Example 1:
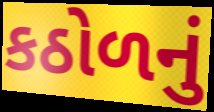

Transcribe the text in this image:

કઠોળનું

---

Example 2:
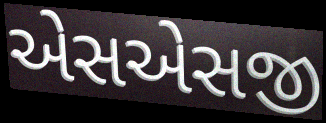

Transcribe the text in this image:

એસએસજી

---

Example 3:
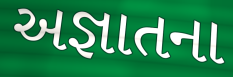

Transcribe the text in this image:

અજ્ઞાતના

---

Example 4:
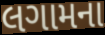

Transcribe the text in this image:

લગામના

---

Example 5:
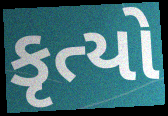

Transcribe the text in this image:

કૃત્યો